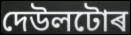
দেউলটোৰ